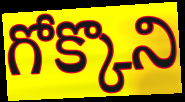
గోక్కొని